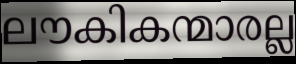
ലൗകികന്മാരല്ല